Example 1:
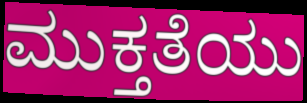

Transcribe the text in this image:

ಮುಕ್ತತೆಯು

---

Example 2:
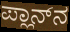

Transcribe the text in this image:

ಪ್ಲಾನ್‌ನ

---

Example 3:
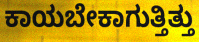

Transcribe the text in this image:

ಕಾಯಬೇಕಾಗುತ್ತಿತ್ತು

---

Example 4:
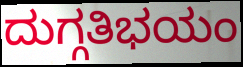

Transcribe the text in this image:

ದುಗ್ಗತಿಭಯಂ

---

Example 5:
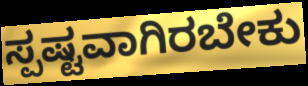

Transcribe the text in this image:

ಸ್ಪಷ್ಟವಾಗಿರಬೇಕು